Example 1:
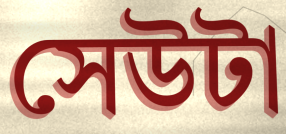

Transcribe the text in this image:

সেউটা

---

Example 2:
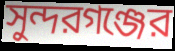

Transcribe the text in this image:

সুন্দরগঞ্জের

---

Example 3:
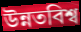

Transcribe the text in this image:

উন্নতবিশ্ব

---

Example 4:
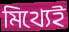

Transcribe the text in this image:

মিথ্যেই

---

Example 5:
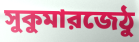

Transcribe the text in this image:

সুকুমারজেঠু